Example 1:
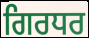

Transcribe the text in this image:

ਗਿਰਧਰ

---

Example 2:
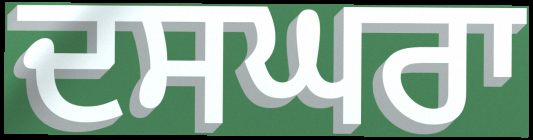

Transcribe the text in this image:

ਦਸਘਰਾ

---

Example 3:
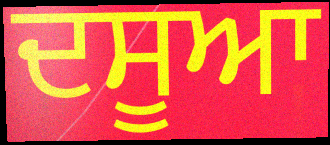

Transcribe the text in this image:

ਦਸੂਆ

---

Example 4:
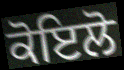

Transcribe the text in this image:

ਕੋਇਲੋ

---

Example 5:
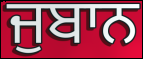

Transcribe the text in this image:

ਜੁਬਾਨ